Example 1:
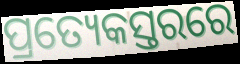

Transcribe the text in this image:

ପ୍ରତ୍ୟେକସ୍ତରରେ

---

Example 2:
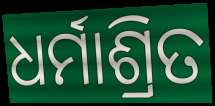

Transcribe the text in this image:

ଧର୍ମାଶ୍ରିତ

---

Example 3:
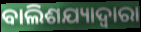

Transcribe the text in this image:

ବାଲିଶଯ୍ୟାଦ୍ଵାରା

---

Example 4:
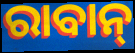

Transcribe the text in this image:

ରାବାନ୍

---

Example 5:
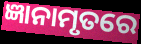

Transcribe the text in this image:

ଜ୍ଞାନାମୃତରେ